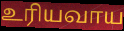
உரியவாய